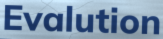
Evalution